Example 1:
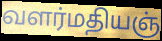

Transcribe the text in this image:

வளர்மதியஞ்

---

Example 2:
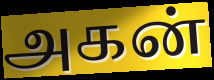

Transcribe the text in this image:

அகன்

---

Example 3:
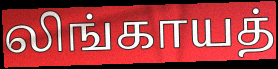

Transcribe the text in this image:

லிங்காயத்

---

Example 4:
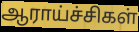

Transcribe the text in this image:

ஆராய்ச்சிகள்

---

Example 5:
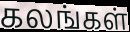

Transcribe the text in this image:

கலங்கள்